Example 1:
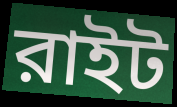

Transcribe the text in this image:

রাইট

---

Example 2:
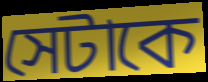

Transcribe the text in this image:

সেটাকে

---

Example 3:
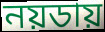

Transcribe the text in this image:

নয়ডায়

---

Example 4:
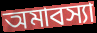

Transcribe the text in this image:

অমাবস্যা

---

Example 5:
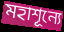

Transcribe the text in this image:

মহাশূন্যে